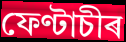
ফেণ্টাচীৰ